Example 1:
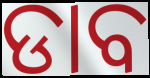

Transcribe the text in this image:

ଡାବ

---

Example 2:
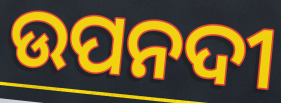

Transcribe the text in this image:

ଉପନଦୀ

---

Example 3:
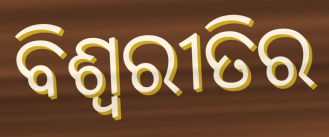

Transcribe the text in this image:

ବିଶ୍ଵରୀତିର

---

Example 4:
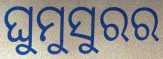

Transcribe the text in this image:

ଘୁମୁସୁରର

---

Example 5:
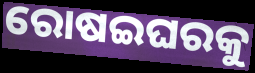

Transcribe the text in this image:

ରୋଷଇଘରକୁ